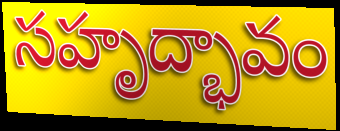
సహృద్భావం